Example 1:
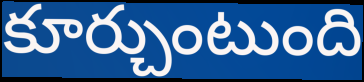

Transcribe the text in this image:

కూర్చుంటుంది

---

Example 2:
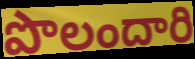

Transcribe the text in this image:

పొలందారి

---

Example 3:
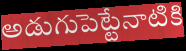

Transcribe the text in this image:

అడుగుపెట్టేనాటికి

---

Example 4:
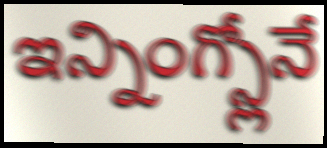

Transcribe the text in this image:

ఇన్నింగ్స్లోనే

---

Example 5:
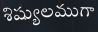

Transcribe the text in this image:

శిష్యులముగా